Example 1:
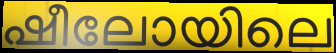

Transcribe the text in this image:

ഷീലോയിലെ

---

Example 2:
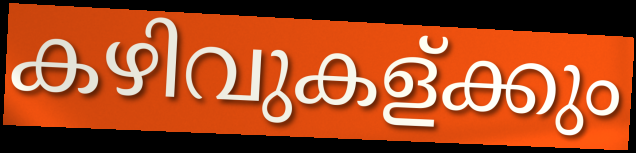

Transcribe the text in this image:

കഴിവുകള്ക്കും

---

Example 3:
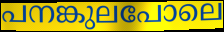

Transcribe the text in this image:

പനങ്കുലപോലെ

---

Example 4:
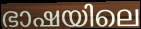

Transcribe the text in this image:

ഭാഷയിലെ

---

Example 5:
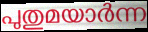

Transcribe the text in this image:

പുതുമയാർന്ന